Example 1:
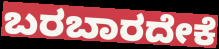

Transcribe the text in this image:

ಬರಬಾರದೇಕೆ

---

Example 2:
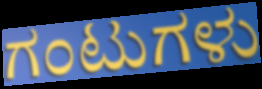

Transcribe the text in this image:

ಗಂಟುಗಳು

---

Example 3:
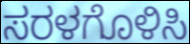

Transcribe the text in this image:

ಸರಳಗೊಳಿಸಿ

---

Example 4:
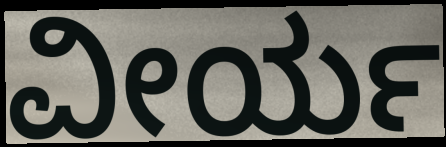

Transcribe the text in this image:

ವೀರ್ಯ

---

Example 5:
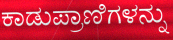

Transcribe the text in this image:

ಕಾಡುಪ್ರಾಣಿಗಳನ್ನು